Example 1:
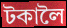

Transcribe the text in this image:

টকালৈ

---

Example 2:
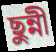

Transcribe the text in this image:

ছুন্নী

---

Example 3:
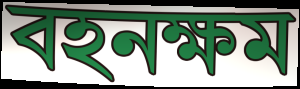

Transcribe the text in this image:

বহনক্ষম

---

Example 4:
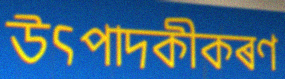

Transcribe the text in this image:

উৎপাদকীকৰণ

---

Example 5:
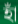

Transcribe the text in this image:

হাঁ